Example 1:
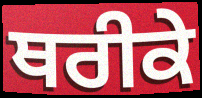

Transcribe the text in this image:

ਥਰੀਕੇ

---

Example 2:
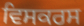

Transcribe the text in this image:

ਵਿਸਕਰਸ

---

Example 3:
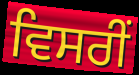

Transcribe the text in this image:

ਵਿਸਰੀਂ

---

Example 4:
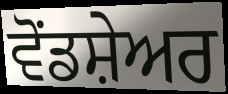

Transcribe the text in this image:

ਵੋਂਡਸ਼ੇਅਰ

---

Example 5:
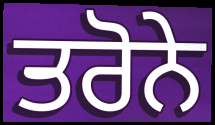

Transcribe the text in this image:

ਤਰੋਨੇ